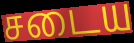
சடைய